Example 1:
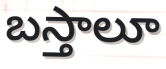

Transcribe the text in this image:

బస్తాలూ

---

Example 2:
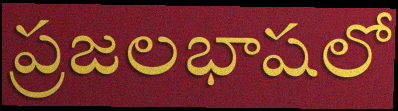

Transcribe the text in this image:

ప్రజలభాషలో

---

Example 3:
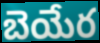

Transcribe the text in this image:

బెయేర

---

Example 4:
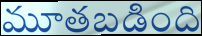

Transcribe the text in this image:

మూతబడింది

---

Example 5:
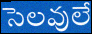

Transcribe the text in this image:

సెలవులే